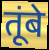
तूंबे